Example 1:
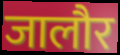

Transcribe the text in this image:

जालौर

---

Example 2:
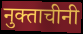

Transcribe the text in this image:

नुक्ताचीनी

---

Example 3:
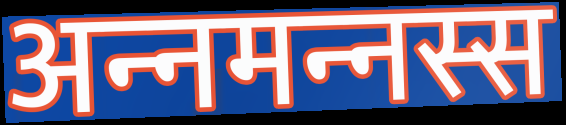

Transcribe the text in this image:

अन्नमन्नस्स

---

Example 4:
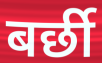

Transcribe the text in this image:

बर्छी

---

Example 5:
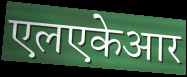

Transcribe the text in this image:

एलएकेआर